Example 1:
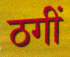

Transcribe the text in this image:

ठगीं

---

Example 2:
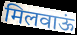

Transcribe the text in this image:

मिलवाऊं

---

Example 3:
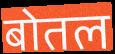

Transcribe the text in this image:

बोतल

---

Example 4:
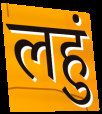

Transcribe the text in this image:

लहुं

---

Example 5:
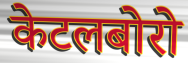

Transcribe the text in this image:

केटलबोरो